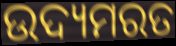
ଉଦ୍ୟମରତ